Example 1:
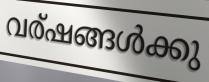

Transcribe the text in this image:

വര്ഷങ്ങൾക്കു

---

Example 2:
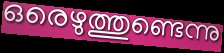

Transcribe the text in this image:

ഒരെഴുത്തുണ്ടെന്നു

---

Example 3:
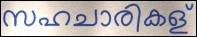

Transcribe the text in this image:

സഹചാരികള്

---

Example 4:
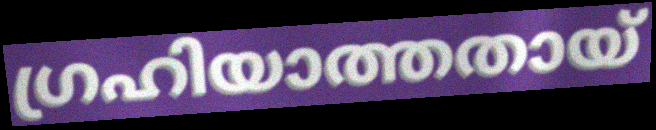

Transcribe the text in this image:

ഗ്രഹിയാത്തതായ്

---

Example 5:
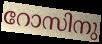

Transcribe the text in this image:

റോസിനു